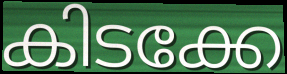
കിടക്കേ